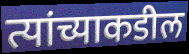
त्यांच्याकडील